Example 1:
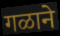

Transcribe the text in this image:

गळाने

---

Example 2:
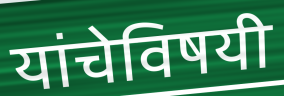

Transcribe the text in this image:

यांचेविषयी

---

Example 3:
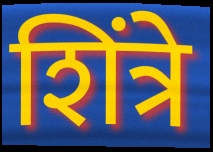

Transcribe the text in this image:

शिंत्रे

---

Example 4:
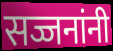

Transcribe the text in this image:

सज्जनांनी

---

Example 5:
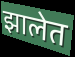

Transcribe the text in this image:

झालेत